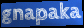
gnapaka